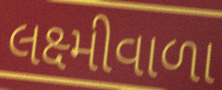
લક્ષ્મીવાળા